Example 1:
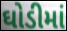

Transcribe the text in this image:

ઘોડીમાં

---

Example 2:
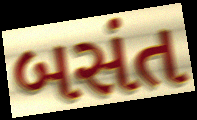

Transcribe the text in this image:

બસંત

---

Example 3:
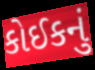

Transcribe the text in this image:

કોઈકનું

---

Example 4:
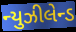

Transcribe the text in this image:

ન્યુઝીલેન્ડ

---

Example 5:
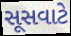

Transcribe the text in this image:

સૂસવાટે